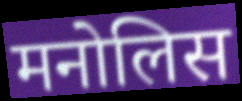
मनोलिस